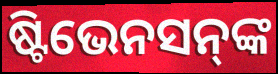
ଷ୍ଟିଭେନସନ୍‍ଙ୍କ